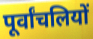
पूर्वांचलियों